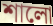
শালো